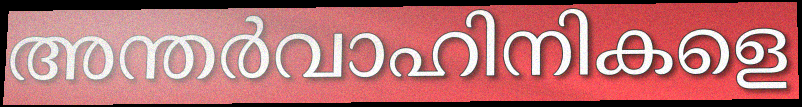
അന്തർവാഹിനികളെ